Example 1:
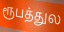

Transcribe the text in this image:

ரூபத்துல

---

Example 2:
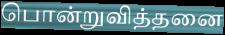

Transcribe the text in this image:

பொன்றுவித்தனை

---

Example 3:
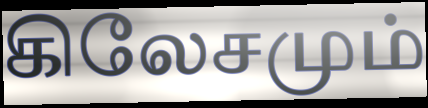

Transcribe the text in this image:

கிலேசமும்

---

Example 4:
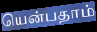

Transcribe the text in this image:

யென்பதாம்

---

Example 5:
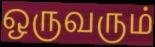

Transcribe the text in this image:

ஒருவரும்